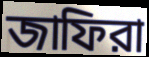
জাফিরা